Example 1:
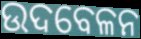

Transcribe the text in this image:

ଉଦବେଳନ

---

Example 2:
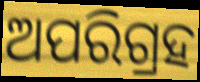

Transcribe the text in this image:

ଅପରିଗ୍ରହ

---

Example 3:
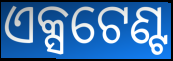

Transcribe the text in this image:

ଏକ୍ସଟେଣ୍ଟ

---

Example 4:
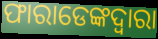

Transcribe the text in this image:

ଫାରାଡେଙ୍କଦ୍ୱାରା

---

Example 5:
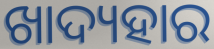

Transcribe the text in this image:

ଖାଦ୍ୟହାର